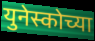
युनेस्कोच्या